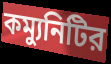
কম্যুনিটির